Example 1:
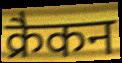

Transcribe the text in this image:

क्रैकन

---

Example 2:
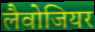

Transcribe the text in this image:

लैवोजियर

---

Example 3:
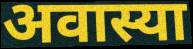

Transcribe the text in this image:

अवास्या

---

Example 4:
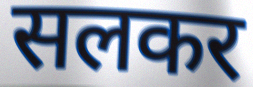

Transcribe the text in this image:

सलकर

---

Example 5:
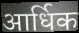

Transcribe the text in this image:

आर्धिक